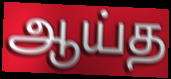
ஆய்த